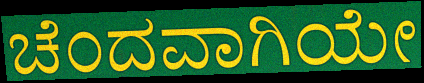
ಚೆಂದವಾಗಿಯೇ